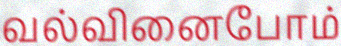
வல்வினைபோம்